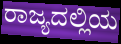
ರಾಜ್ಯದಲ್ಲಿಯ